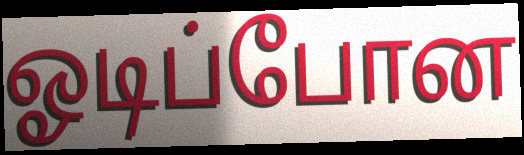
ஓடிப்போன